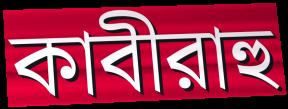
কাবীরাহু